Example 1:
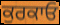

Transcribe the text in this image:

ਕੁਰਕਾਓ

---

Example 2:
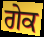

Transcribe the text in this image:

ਗੇਕ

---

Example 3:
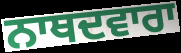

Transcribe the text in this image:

ਨਾਥਦਵਾਰਾ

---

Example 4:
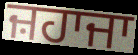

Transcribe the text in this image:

ਜ਼ਹਾਜਾ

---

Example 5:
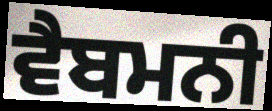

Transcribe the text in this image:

ਵੈਬਮਨੀ